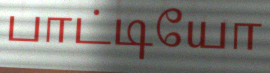
பாட்டியோ